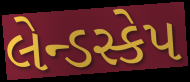
લેન્ડસ્કેપ